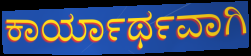
ಕಾರ್ಯಾರ್ಥವಾಗಿ